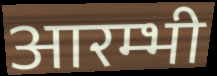
आरम्भी